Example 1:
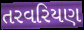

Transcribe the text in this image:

તરવરિયણ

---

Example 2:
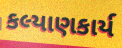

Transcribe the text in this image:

કલ્યાણકાર્ય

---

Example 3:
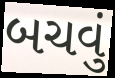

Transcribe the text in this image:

બચવું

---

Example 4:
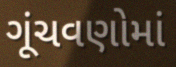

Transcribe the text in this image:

ગૂંચવણોમાં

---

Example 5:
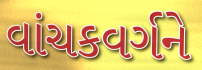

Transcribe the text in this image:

વાંચકવર્ગને